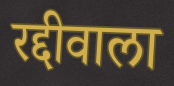
रद्दीवाला